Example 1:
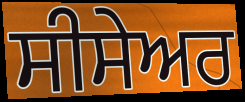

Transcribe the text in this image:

ਸੀਸੇਅਰ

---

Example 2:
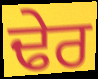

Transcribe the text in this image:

ਢੇਰ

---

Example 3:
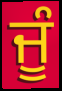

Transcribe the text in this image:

ਜੂੰ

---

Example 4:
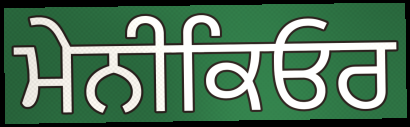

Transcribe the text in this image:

ਮੇਨੀਕਿਓਰ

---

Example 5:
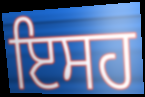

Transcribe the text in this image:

ਇਸਹ